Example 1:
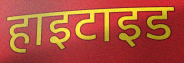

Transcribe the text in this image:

हाइटाइड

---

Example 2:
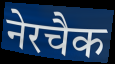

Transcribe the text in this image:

नेरचैक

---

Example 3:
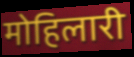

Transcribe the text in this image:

मोहिलारी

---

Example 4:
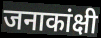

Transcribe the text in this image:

जनाकांक्षी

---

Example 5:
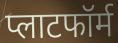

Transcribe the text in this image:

प्लाटफॉर्म